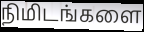
நிமிடங்களை